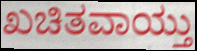
ಖಚಿತವಾಯ್ತು